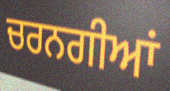
ਚਰਨਗੀਆਂ